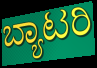
ಬ್ಯಾಟರಿ